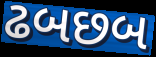
ઢબછબ